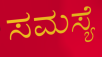
ಸಮಸ್ಯೆ